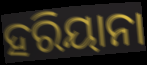
ହରିୟାନା